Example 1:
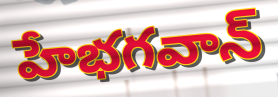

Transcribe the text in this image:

హేభగవాన్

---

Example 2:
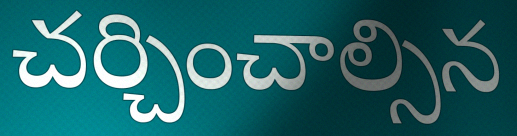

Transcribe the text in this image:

చర్చించాల్సిన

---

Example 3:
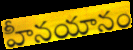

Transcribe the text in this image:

హీనయానం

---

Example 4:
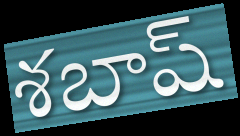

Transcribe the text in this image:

శబాష్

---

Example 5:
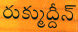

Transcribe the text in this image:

రుక్ముద్దీన్